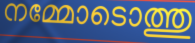
നമ്മോടൊത്തു